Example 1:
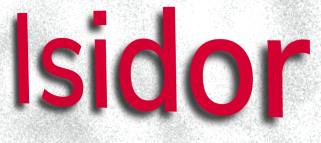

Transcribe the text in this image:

Isidor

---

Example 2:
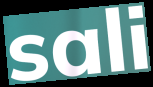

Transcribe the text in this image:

sali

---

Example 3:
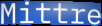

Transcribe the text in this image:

Mittre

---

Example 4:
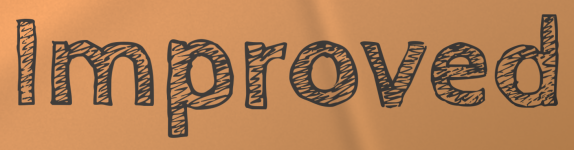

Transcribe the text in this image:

Improved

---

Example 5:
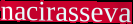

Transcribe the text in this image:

nacirasseva